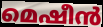
മെഷീൻ